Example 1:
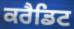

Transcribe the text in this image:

ਕਰੈਡਿਟ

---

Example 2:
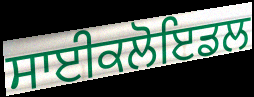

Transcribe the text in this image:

ਸਾਈਕਲੋਇਡਲ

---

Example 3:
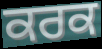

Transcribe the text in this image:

ਕਰਕ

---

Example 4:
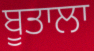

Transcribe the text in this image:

ਬੂਤਾਲਾ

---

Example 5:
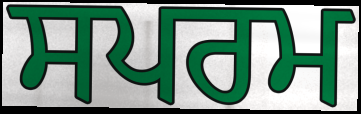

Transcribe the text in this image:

ਸਪਰਮ